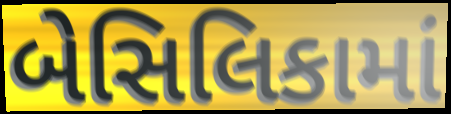
બેસિલિકામાં